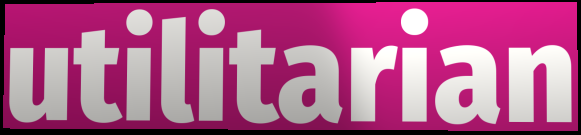
utilitarian